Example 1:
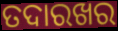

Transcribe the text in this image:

ତଦାରଖର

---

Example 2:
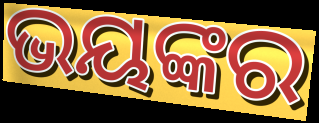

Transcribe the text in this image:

ଭୟଙ୍କର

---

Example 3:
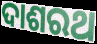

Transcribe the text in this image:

ଦାଶରଥ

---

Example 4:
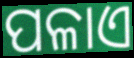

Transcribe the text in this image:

ପଳାଏ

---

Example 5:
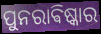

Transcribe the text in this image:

ପୁନରାଵିଷ୍କାର